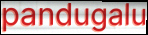
pandugalu